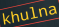
khulna